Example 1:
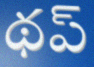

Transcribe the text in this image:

థప్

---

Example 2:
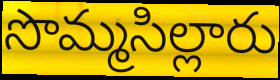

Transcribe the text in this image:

సొమ్మసిల్లారు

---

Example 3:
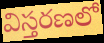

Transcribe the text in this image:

విస్తరణలో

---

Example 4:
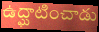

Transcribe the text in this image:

ఉద్ఘాటించాడు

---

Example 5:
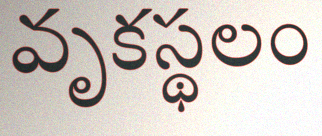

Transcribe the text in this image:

వృకస్థలం